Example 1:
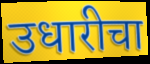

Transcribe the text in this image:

उधारीचा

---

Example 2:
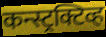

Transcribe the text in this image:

कन्स्ट्रक्टिव्ह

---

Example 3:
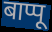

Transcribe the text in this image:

बाप्पू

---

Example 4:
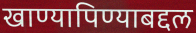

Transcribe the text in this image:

खाण्यापिण्याबद्दल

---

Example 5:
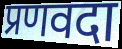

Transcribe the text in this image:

प्रणवदा